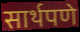
सार्थपणे